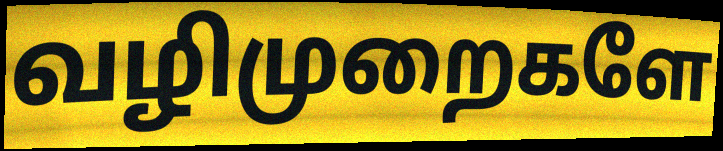
வழிமுறைகளே